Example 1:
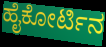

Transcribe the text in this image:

ಹೈಕೋರ್ಟಿನ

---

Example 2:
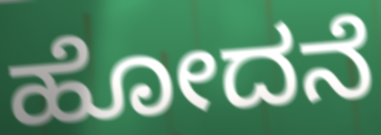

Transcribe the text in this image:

ಹೋದನೆ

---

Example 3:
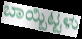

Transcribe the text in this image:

ಬಾಯ್ಬಿಟ್ಟಳು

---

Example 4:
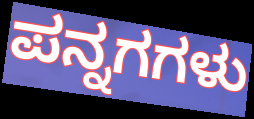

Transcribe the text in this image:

ಪನ್ನಗಗಳು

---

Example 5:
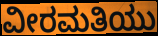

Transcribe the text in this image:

ವೀರಮತಿಯು